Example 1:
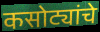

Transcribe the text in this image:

कसोट्यांचे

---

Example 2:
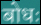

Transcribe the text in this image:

बोधः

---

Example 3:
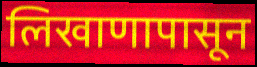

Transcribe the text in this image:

लिखाणापासून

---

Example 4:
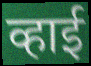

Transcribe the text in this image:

व्हाई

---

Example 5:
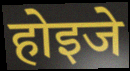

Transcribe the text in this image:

होइजे